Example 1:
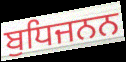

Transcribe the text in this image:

ਬੁਧਿਜਨਨ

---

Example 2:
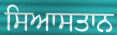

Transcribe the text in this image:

ਸਿਆਸਤਾਨ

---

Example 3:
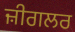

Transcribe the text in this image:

ਜ਼ੀਗਲਰ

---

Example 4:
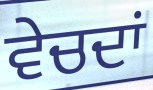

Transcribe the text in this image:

ਵੇਚਦਾਂ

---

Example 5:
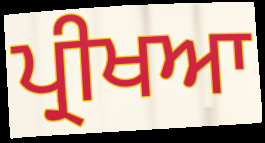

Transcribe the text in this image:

ਪ੍ਰੀਖਆ